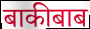
बाकीबाब